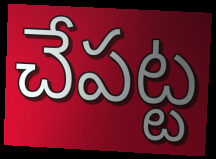
చేపట్ట